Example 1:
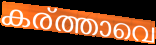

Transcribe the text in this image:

കര്ത്താവെ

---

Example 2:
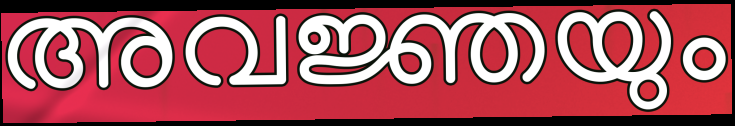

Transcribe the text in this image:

അവജ്ഞയും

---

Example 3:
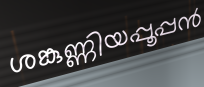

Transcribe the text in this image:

ശങ്കുണ്ണിയപ്പൂപ്പൻ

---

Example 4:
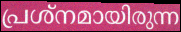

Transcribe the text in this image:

പ്രശ്നമായിരുന്ന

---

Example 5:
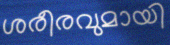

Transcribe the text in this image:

ശരീരവുമായി